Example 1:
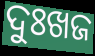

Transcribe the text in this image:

ଦୁଃଖଜ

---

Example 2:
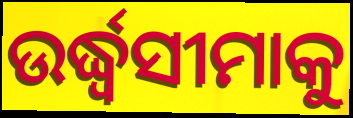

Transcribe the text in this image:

ଉର୍ଦ୍ଧ୍ୱସୀମାକୁ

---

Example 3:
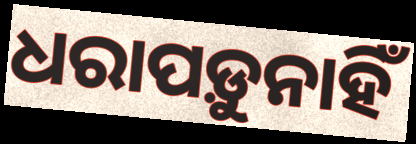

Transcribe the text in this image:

ଧରାପଡ଼ୁନାହିଁ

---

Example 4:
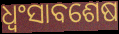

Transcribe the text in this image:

ଧ୍ଵଂସାବଶେଷ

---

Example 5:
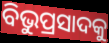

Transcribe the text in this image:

ବିଭୁପ୍ରସାଦକୁ